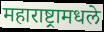
महाराष्ट्रामधले